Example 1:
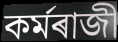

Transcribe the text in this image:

কৰ্মৰাজী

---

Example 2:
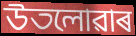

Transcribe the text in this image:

উতলোৱাৰ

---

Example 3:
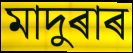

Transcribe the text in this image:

মাদুৰাৰ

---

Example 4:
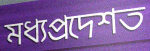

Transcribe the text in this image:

মধ্যপ্ৰদেশত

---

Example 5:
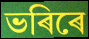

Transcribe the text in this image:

ভৰিৰে